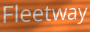
Fleetway